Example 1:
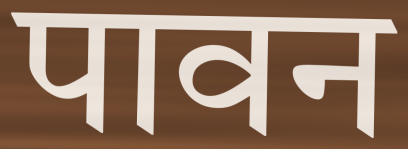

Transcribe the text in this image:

पावन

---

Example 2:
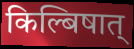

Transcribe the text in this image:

किल्बिषात्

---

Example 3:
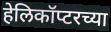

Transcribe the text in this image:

हेलिकॉप्टरच्या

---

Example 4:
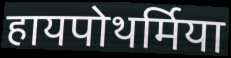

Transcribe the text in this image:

हायपोथर्मिया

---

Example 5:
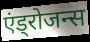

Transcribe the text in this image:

एंड्रोजन्स